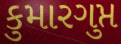
કુમારગુપ્ત